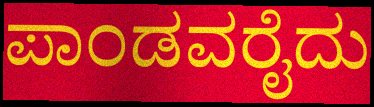
ಪಾಂಡವರೈದು